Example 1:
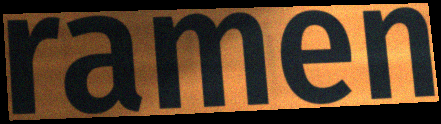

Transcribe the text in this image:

ramen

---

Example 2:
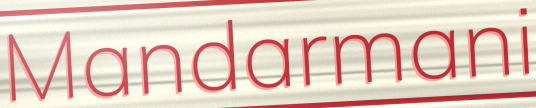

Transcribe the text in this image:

Mandarmani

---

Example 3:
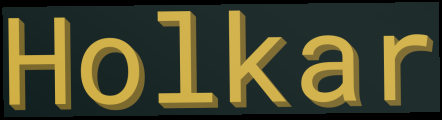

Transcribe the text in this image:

Holkar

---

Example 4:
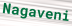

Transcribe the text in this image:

Nagaveni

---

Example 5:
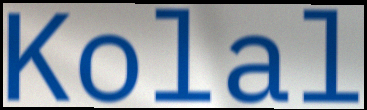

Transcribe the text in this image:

Kolal